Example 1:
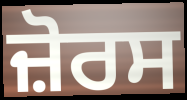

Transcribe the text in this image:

ਜ਼ੋਰਸ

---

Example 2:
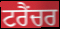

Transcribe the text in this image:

ਟਰੈਂਚਰ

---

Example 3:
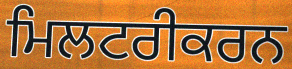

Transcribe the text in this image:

ਮਿਲਟਰੀਕਰਨ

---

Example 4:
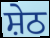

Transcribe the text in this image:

ਸ਼ੇਠ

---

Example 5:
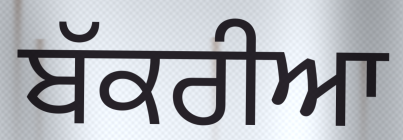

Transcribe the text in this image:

ਬੱਕਰੀਆ